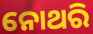
ନୋଥରି